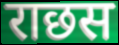
राछस